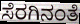
ಸೆರಗಿನಂತೆ